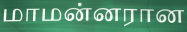
மாமன்னரான